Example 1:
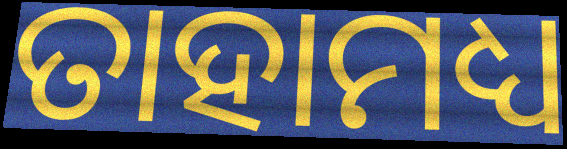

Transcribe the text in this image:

ତାହାମଧ୍ୟ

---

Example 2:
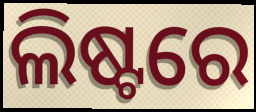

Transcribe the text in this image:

ଲିଷ୍ଟରେ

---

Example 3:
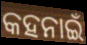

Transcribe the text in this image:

କହନାଇଁ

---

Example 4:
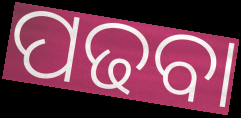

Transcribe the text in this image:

ପଢବା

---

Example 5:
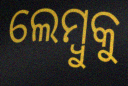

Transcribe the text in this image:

ଲେମ୍ବୁକୁ